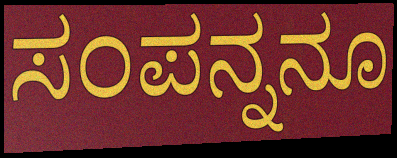
ಸಂಪನ್ನನೂ